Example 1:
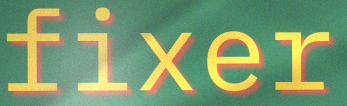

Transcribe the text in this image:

fixer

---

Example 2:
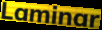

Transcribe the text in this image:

Laminar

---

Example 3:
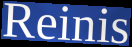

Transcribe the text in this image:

Reinis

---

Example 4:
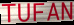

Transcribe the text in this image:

TUFAN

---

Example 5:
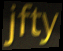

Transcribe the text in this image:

jfty